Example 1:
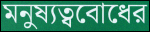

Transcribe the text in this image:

মনুষ্যত্ববোধের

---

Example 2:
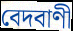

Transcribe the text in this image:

বেদবাণী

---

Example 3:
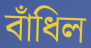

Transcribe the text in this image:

বাঁধিল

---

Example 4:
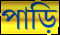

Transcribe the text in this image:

পাড়ি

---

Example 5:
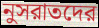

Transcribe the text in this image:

নুসরাতদের